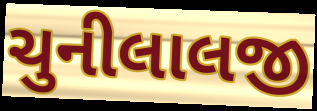
ચુનીલાલજી